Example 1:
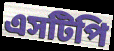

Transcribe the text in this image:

এসটিপি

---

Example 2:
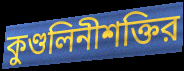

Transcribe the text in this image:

কুণ্ডলিনীশক্তির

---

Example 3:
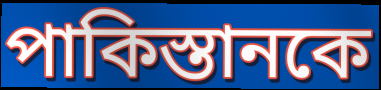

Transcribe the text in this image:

পাকিস্তানকে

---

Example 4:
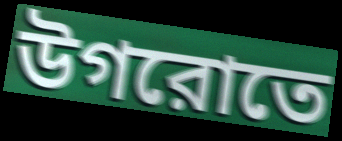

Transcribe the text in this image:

উগরোতে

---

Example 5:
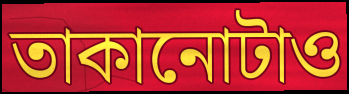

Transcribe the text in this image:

তাকানোটাও